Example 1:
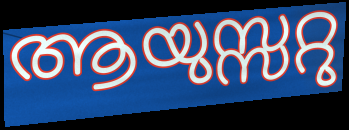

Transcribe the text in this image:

ആയുസ്സറ്റു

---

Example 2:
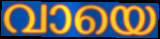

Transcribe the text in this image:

വായെ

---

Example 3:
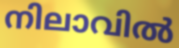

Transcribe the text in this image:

നിലാവിൽ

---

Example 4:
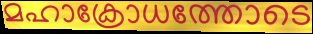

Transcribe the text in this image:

മഹാക്രോധത്തോടെ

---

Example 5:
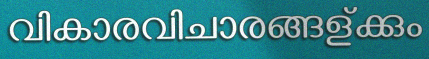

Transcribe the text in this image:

വികാരവിചാരങ്ങള്ക്കും